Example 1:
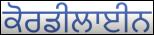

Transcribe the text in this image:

ਕੋਰਡੀਲਾਈਨ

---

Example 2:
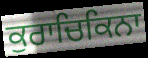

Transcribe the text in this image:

ਕੁਰਾਚਿਕਿਨਾ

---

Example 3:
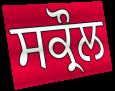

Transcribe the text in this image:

ਸਕ੍ਰੌਲ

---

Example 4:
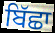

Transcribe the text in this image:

ਬਿੱਛਾ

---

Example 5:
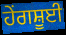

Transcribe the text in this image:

ਹੇਂਗਸ਼ੂਈ